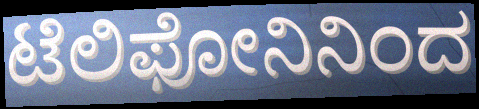
ಟೆಲಿಫೋನಿನಿಂದ